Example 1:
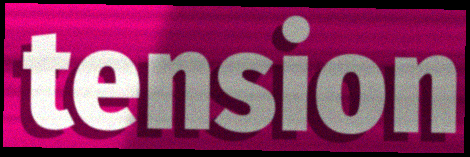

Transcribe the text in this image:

tension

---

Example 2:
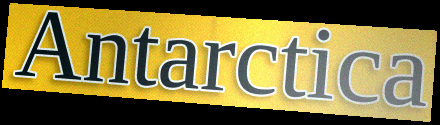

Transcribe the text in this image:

Antarctica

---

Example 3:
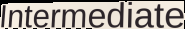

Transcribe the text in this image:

Intermediate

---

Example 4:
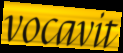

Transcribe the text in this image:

vocavit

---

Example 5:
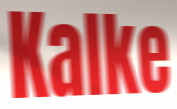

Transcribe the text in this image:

Kalke